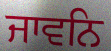
ਜਾਵਨਿ